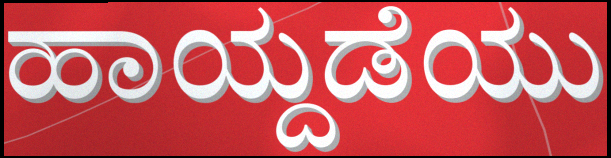
ಹಾಯ್ದಡೆಯು